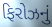
ફિરોઝનું